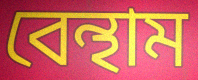
বেন্থাম